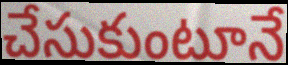
చేసుకుంటూనే